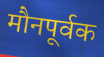
मौनपूर्वक